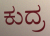
ಕುದ್ರ